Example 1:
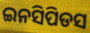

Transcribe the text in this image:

ଇନସିପିଡସ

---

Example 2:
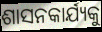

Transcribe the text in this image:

ଶାସନକାର୍ଯ୍ୟକୁ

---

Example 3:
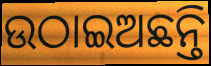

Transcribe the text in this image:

ଉଠାଇଅଛନ୍ତି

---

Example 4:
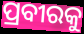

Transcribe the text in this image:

ପ୍ରବୀରକୁ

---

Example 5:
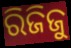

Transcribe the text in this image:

ରିଜିଜୁ